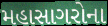
મહાસાગરોના